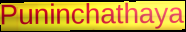
Puninchathaya